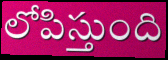
లోపిస్తుంది